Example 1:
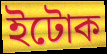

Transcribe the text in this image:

ইটোক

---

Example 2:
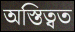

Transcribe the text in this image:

অস্তিত্বত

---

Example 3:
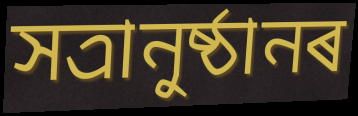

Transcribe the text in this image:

সত্ৰানুষ্ঠানৰ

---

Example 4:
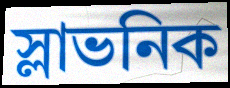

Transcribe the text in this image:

স্লাভনিক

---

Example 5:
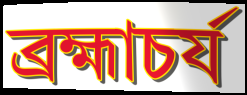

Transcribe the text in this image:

ব্ৰহ্মাচৰ্য